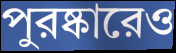
পুরষ্কারেও